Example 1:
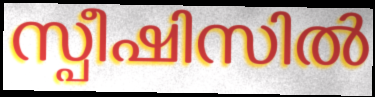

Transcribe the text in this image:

സ്പീഷിസിൽ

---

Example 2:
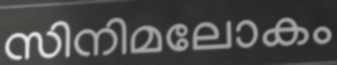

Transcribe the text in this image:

സിനിമലോകം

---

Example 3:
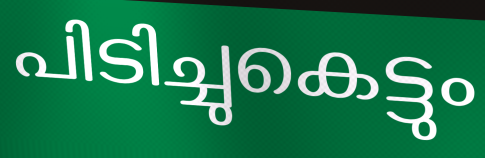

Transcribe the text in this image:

പിടിച്ചുകെട്ടും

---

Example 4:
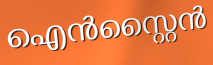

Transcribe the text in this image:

ഐൻസ്റ്റൈൻ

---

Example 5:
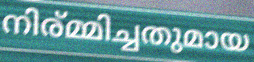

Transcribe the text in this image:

നിര്മ്മിച്ചതുമായ